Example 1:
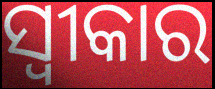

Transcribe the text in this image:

ସ୍ୱୀକାର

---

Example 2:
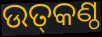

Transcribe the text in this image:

ଉତ୍‌କଣ୍ଠ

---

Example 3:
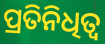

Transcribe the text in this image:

ପ୍ରତିନିଧିତ୍ବ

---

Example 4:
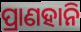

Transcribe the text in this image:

ପ୍ରାଣହାନି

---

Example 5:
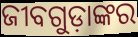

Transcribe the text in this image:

ଜୀବଗୁଡ଼ାଙ୍କର